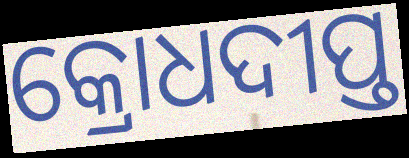
କ୍ରୋଧଦୀପ୍ତ